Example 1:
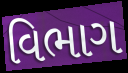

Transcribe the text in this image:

વિભાગ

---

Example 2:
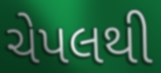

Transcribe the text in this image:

ચેપલથી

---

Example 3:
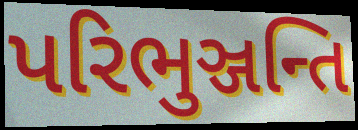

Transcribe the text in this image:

પરિભુઞ્જન્તિ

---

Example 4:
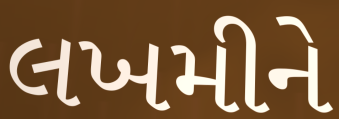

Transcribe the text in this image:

લખમીને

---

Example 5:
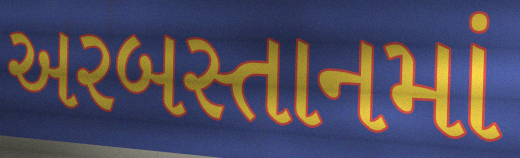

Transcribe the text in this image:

અરબસ્તાનમાં